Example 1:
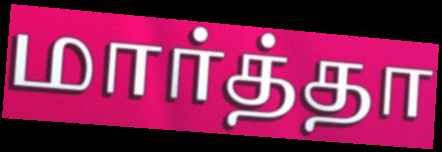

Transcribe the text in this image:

மார்த்தா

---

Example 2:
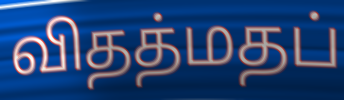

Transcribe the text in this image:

விதத்மதப்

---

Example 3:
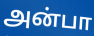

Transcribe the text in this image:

அன்பா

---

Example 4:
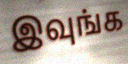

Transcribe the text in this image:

இவுங்க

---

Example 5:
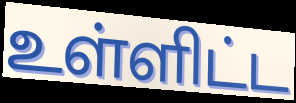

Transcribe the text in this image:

உள்ளிட்ட